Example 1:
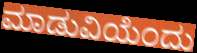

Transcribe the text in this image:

ಮಾಡುವಿಯೆಂದು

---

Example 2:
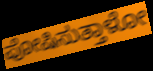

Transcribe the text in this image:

ಪೋಷಿಸುತ್ತಾಳೋ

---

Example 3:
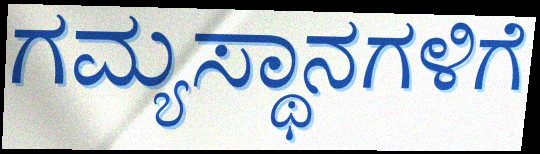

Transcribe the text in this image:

ಗಮ್ಯಸ್ಥಾನಗಳಿಗೆ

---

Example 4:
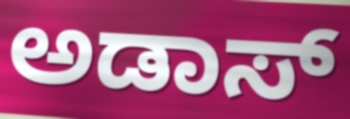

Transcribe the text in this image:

ಅಡಾಸ್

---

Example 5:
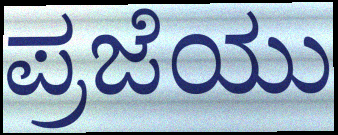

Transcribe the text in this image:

ಪ್ರಜೆಯು